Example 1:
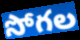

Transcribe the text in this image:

సోగల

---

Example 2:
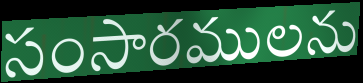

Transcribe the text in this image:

సంసారములను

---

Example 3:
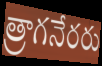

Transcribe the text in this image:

త్రాగనేరరు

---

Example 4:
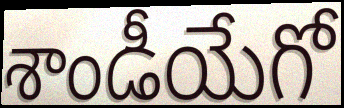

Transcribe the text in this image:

శాండీయేగో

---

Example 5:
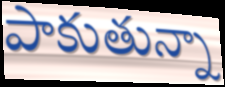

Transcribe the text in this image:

పాకుతున్నా